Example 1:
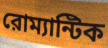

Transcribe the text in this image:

রোম্যান্টিক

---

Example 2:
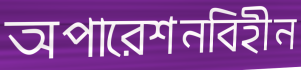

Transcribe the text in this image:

অপারেশনবিহীন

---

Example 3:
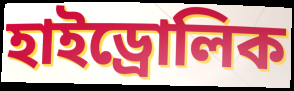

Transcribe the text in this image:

হাইড্রোলিক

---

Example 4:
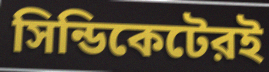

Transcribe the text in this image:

সিন্ডিকেটেরই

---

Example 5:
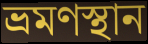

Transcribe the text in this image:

ভ্রমণস্থান